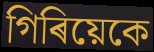
গিৰিয়েকে